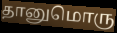
தானுமொரு